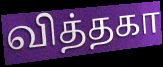
வித்தகா